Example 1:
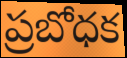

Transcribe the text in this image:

ప్రబోధక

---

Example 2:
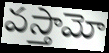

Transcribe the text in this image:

వస్తామో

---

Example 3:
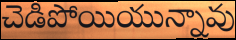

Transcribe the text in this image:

చెడిపోయియున్నావు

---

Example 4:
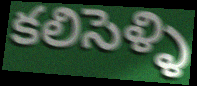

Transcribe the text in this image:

కలిసెళ్ళి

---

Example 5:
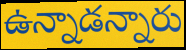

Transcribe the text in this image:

ఉన్నాడన్నారు